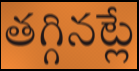
తగ్గినట్లే